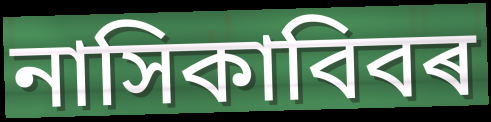
নাসিকাবিবৰ